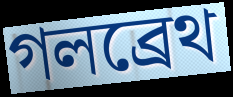
গলব্রেথ